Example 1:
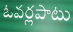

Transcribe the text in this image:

ఓవర్లపాటు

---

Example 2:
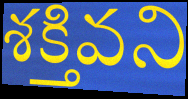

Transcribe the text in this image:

శక్తివని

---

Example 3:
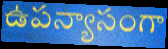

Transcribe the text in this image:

ఉపన్యాసంగా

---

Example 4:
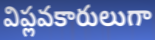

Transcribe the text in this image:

విప్లవకారులుగా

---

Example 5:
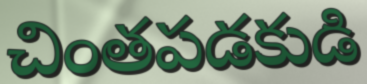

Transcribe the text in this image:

చింతపడకుడి